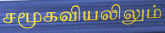
சமூகவியலிலும்